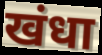
खंधा